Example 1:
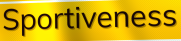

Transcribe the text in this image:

Sportiveness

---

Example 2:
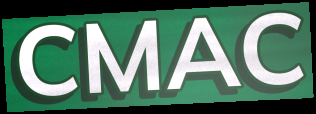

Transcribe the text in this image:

CMAC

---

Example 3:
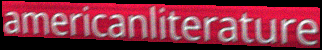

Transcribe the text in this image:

americanliterature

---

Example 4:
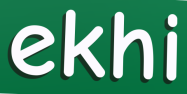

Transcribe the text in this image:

ekhi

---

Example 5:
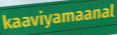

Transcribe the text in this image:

kaaviyamaanal